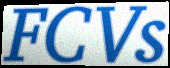
FCVs